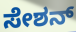
ಸೇಶನ್